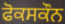
ਫੋਕਸਕੌਨ